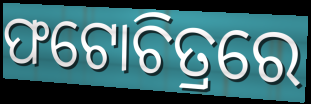
ଫଟୋଚିତ୍ରରେ